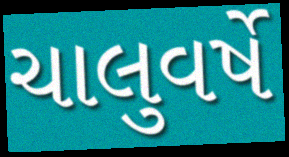
ચાલુવર્ષે